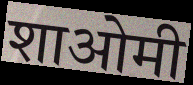
शाओमी